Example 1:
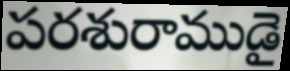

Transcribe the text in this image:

పరశురాముడై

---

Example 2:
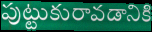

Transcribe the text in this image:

పుట్టుకురావడానికి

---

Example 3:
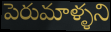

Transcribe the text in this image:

పెరుమాళ్ళని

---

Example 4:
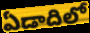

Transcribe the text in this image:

ఏడాదిలో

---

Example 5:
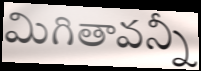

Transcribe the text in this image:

మిగితావన్నీ